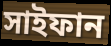
সাইফান